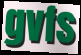
gvfs